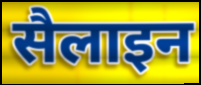
सैलाइन